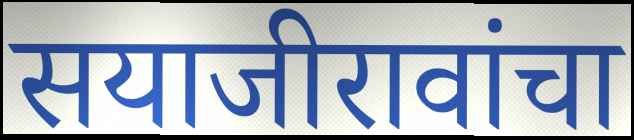
सयाजीरावांचा